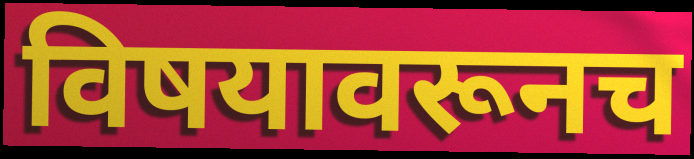
विषयावरूनच